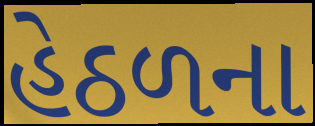
હેઠળના